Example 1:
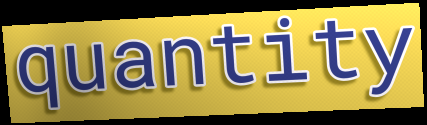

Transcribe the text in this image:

quantity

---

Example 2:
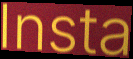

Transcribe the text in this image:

Insta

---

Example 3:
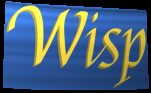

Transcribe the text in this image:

Wisp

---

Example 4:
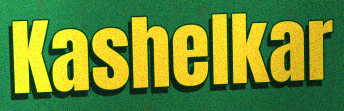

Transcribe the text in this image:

Kashelkar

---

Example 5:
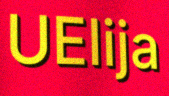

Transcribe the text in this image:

UElija